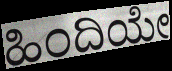
ಹಿಂದಿಯೇ